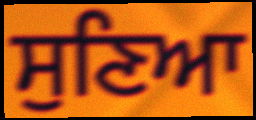
ਸੁਣਿਆ